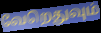
வேறெதுவும்